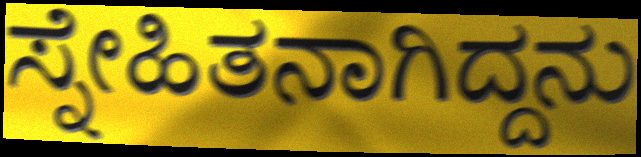
ಸ್ನೇಹಿತನಾಗಿದ್ದನು